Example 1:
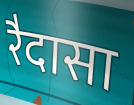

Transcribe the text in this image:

रैदासा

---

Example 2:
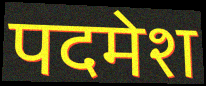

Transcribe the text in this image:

पदमेश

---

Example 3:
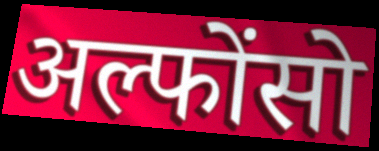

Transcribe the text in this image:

अल्फोंसो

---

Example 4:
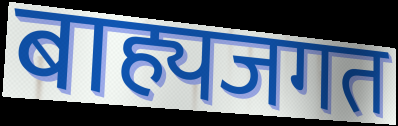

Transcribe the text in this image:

बाह्यजगत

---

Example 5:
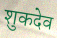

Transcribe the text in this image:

शुकदेव